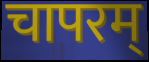
चापरम्